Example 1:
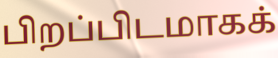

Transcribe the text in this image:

பிறப்பிடமாகக்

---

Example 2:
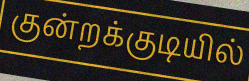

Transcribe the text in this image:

குன்றக்குடியில்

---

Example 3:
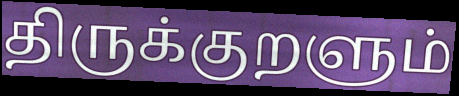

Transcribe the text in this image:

திருக்குறளும்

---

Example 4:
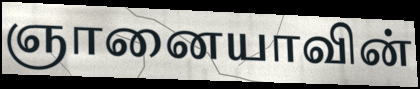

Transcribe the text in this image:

ஞானையாவின்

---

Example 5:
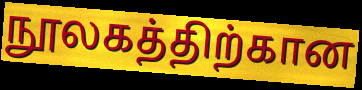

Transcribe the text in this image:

நூலகத்திற்கான